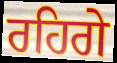
ਰਹਿਗੇ